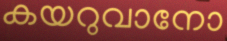
കയറുവാനോ